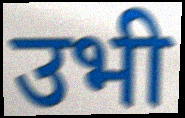
उभी